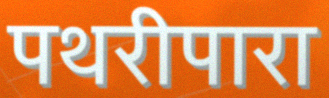
पथरीपारा